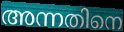
അന്നതിനെ